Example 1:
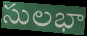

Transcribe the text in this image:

సులభా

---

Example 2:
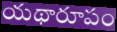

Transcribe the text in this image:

యథారూపం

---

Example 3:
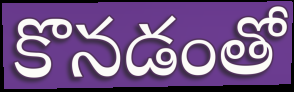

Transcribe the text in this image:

కొనడంతో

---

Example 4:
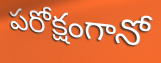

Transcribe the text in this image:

పరోక్షంగానో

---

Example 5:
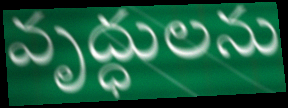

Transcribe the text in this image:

వృద్ధులను